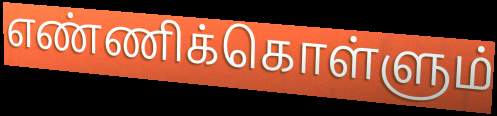
எண்ணிக்கொள்ளும்